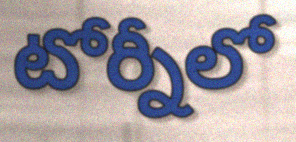
టోర్నీలో